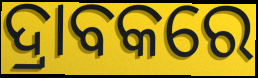
ଦ୍ରାବକରେ